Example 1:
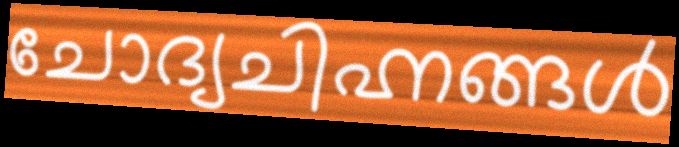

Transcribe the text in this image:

ചോദ്യചിഹ്നങ്ങൾ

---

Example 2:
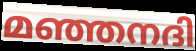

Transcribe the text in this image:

മഞ്ഞനദി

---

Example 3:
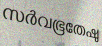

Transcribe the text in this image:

സർവഭൂതേഷു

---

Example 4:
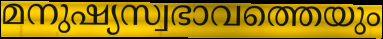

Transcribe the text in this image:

മനുഷ്യസ്വഭാവത്തെയും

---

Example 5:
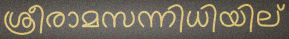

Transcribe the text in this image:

ശ്രീരാമസന്നിധിയില്